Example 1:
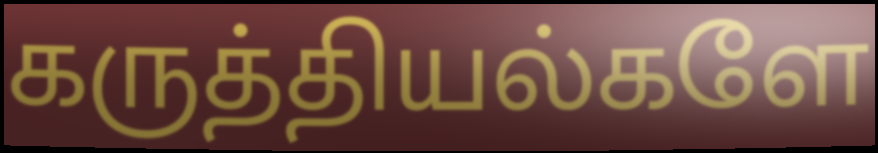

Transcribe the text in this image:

கருத்தியல்களே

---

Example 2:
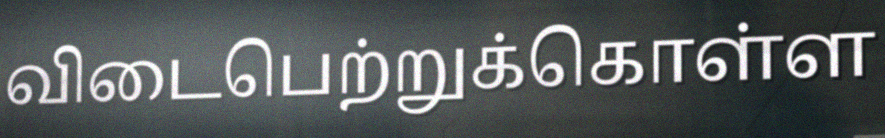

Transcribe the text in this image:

விடைபெற்றுக்கொள்ள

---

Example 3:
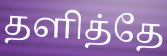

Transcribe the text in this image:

தளித்தே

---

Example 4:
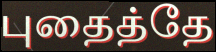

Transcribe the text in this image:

புதைத்தே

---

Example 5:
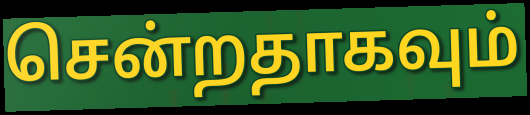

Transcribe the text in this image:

சென்றதாகவும்